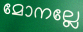
മോനല്ലേ